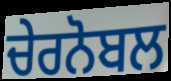
ਚੇਰਨੋਬਲ